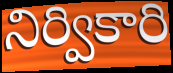
నిర్వికారి